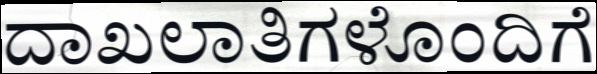
ದಾಖಲಾತಿಗಳೊಂದಿಗೆ